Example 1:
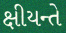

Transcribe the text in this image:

ક્ષીયન્તે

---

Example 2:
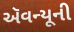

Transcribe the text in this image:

ઍવન્યૂની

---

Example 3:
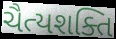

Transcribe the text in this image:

ચૈત્યશક્તિ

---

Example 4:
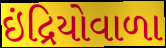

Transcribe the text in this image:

ઇંદ્રિયોવાળા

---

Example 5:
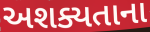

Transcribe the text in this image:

અશક્યતાના